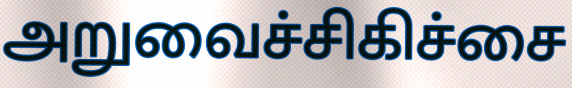
அறுவைச்சிகிச்சை